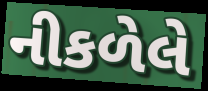
નીકળેલે